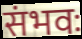
संभवः